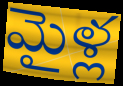
మైళ్ల